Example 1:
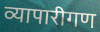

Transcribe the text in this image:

व्यापारीगण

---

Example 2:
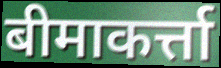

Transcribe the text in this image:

बीमाकर्त्ता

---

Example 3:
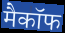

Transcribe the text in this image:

मैकॉफ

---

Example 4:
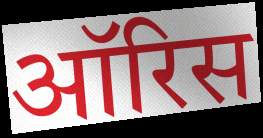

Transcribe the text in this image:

ऑरिस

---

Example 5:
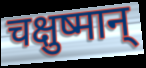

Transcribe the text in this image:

चक्षुष्मान्